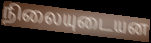
நிலையுடையன